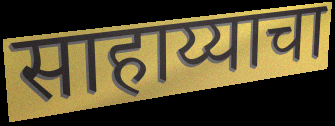
साहाय्याचा